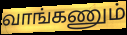
வாங்கணும்